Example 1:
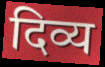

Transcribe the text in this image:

दिव्य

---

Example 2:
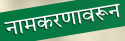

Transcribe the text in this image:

नामकरणावरून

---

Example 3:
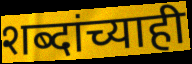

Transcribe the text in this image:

शब्दांच्याही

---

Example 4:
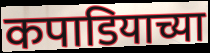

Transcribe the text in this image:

कपाडियाच्या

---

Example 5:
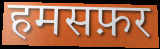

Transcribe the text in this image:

हमसफ़र